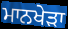
ਮਾਨਖੇੜਾ